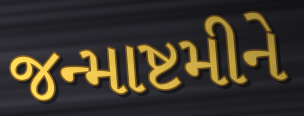
જન્માષ્ટમીને